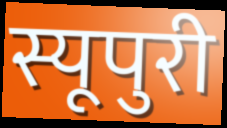
स्यूपुरी